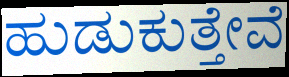
ಹುಡುಕುತ್ತೇವೆ